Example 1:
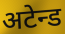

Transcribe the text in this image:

अटेन्ड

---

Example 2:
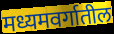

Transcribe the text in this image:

मध्यमवर्गातील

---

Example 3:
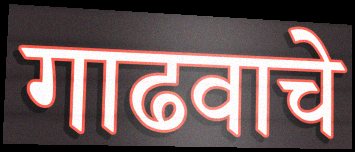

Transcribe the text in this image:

गाढवाचे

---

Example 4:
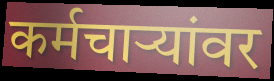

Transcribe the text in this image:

कर्मचार्‍यांवर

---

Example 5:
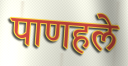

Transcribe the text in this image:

पाणहले